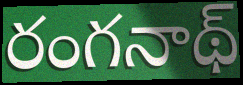
రంగనాథ్